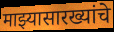
माझ्यासारख्यांचे